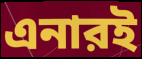
এনারই